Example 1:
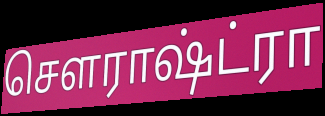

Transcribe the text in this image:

சௌராஷ்ட்ரா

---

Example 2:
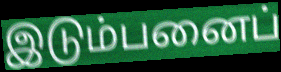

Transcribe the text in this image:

இடும்பனைப்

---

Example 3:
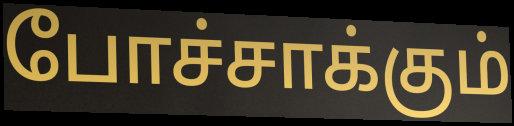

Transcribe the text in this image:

போச்சாக்கும்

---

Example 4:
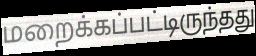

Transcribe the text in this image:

மறைக்கப்பட்டிருந்தது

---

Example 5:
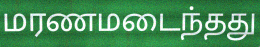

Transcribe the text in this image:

மரணமடைந்தது